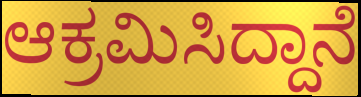
ಆಕ್ರಮಿಸಿದ್ದಾನೆ